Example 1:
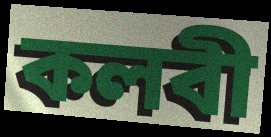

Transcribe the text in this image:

কলবী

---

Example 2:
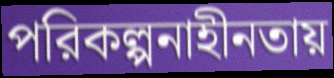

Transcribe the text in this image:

পরিকল্পনাহীনতায়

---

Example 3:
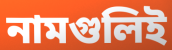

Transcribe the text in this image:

নামগুলিই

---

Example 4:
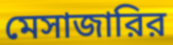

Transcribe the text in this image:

মেসাজারির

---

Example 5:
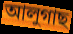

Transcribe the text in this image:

আলুগাছ